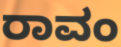
ರಾವಂ